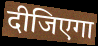
दीजिएगा